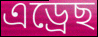
এড্ৰেছ